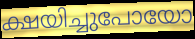
ക്ഷയിച്ചുപോയോ